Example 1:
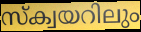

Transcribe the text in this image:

സ്ക്വയറിലും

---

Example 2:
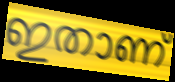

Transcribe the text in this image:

ഇതാണ്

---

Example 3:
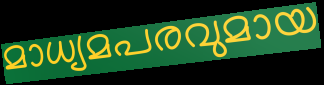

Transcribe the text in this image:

മാധ്യമപരവുമായ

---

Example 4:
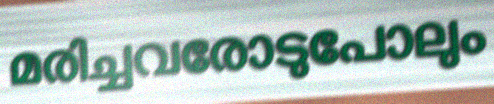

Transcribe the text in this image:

മരിച്ചവരോടുപോലും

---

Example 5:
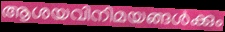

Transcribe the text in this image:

ആശയവിനിമയങ്ങൾക്കും